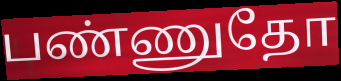
பண்ணுதோ